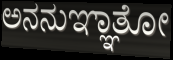
ಅನನುಞ್ಞಾತೋ